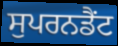
ਸੁਪਰਨਡੈਂਟ